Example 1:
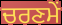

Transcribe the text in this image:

ਚਰਣਮੇਂ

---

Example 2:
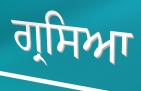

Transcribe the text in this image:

ਗ੍ਰਸਿਆ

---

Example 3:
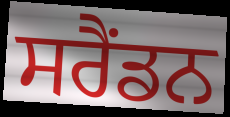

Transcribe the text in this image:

ਸਰੈਂਡਨ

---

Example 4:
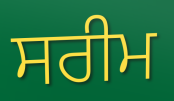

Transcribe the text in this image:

ਸਰੀਮ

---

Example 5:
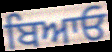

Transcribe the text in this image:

ਬਿਆਓ